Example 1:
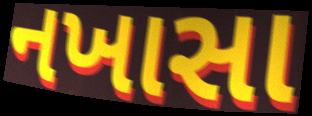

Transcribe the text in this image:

નખાસા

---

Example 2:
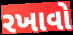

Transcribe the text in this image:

રખાવો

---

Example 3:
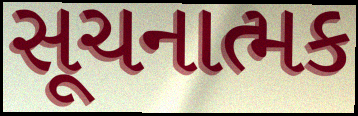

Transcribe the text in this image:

સૂચનાત્મક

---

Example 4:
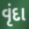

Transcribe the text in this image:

વૃંદા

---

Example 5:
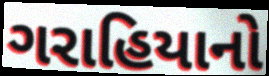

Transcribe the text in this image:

ગરાહિયાનો